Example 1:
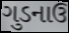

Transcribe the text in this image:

ગુડનાઉ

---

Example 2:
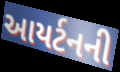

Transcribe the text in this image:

આયર્ટનની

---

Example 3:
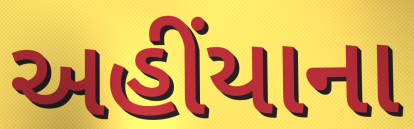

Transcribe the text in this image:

અહીંયાના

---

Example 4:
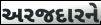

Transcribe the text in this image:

અરજદારને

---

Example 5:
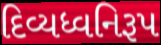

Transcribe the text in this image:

દિવ્યધ્વનિરૂપ